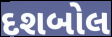
દશબોલ